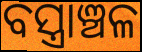
ବସ୍ତ୍ରାଞ୍ଚଳ